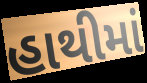
હાથીમાં